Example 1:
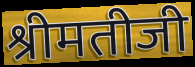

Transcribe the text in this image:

श्रीमतीजी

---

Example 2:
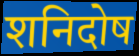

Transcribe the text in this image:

शनिदोष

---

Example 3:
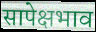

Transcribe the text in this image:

सापेक्षभाव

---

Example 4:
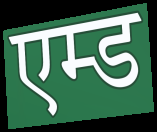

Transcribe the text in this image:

एम्ड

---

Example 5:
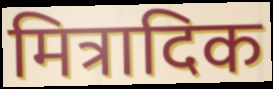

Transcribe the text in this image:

मित्रादिक